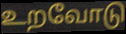
உறவோடு